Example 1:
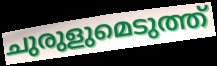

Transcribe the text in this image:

ചുരുളുമെടുത്ത്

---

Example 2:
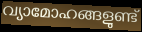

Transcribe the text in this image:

വ്യാമോഹങ്ങളുണ്ട്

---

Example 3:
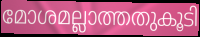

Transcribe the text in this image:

മോശമല്ലാത്തതുകൂടി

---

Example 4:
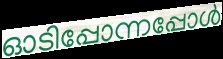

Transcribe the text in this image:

ഓടിപ്പോന്നപ്പോൾ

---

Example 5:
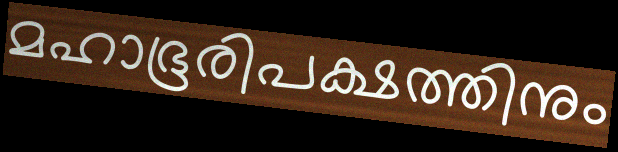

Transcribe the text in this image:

മഹാഭൂരിപക്ഷത്തിനും